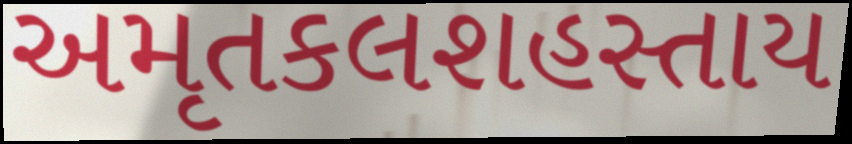
અમૃતકલશહસ્તાય